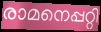
രാമനെപ്പറ്റി